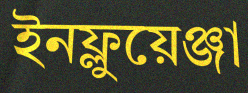
ইনফ্লুয়েঞ্জা